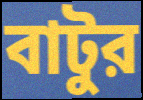
বাটুর